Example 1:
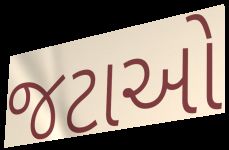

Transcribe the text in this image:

જટાઓ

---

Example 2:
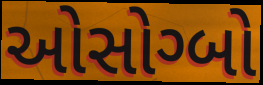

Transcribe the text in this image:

ઓસોગ્બો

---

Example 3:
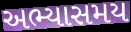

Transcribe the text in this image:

અભ્યાસમય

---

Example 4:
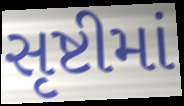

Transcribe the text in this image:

સૃષ્ટીમાં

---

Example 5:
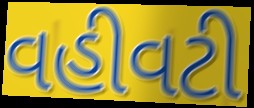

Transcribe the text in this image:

વહીવટી